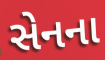
સેનના